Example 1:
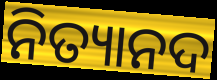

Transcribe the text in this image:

ନିତ୍ୟାନଦ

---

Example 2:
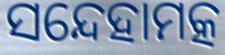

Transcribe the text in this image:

ସନ୍ଦେହାମତ୍କ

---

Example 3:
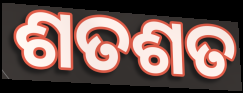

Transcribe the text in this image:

ଶତଶତ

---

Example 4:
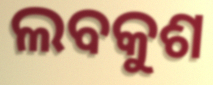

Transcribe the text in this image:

ଲବକୁଶ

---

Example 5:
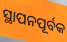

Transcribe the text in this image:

ସ୍ଥାପନପୂର୍ବକ